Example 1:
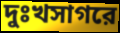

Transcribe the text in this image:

দুঃখসাগরে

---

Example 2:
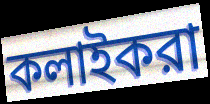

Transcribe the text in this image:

কলাইকরা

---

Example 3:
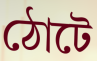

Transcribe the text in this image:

ঠোটে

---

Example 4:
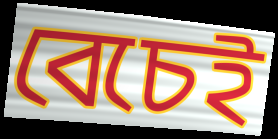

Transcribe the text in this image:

বেচেই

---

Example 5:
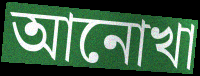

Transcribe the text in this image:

আনোখা